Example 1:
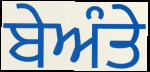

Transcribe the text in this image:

ਬੇਅੰਤੇ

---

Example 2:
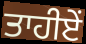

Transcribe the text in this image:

ਤਾਹੀਏਂ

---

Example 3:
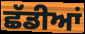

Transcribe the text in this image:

ਛੱਡੀਆਂ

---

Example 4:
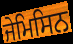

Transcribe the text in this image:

ਜੇਮਿਸਿਨ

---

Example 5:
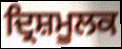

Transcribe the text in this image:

ਦ੍ਰਿਸ਼ਮੂਲਕ